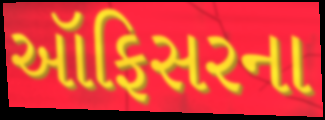
ઑફિસરના